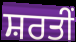
ਸ਼ਰਤੀਂ